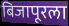
बिजापूरला